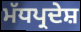
ਮੱਧਪ੍ਰਦੇਸ਼